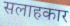
सलाहकार